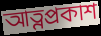
আত্নপ্রকাশ